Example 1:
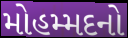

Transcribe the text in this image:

મોહમ્મદનો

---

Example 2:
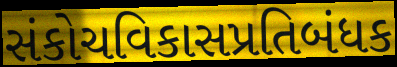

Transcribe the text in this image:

સંકોચવિકાસપ્રતિબંધક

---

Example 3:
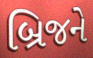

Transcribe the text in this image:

બ્રિજને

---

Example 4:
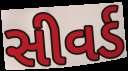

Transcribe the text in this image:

સીવર્ડ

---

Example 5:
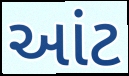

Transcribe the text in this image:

આંટ